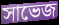
সাভেজ